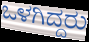
ಒಳಗಿದ್ದರು